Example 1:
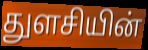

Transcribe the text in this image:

துளசியின்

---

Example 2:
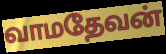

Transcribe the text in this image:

வாமதேவன்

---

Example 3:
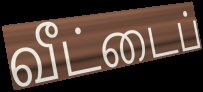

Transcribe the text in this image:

வீட்டைப்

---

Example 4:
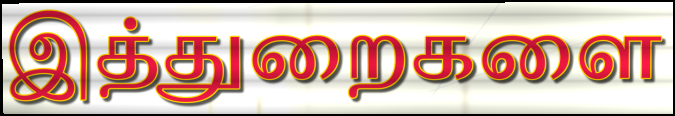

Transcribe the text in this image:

இத்துறைகளை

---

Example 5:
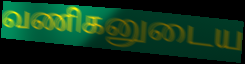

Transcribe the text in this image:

வணிகனுடைய